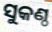
ସୁକଣ୍ଠ